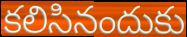
కలిసినందుకు